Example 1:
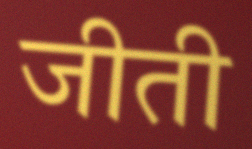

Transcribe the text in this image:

जीती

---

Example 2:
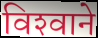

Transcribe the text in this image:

विश्वाने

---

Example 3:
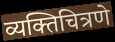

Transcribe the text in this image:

व्यक्तिचित्रणे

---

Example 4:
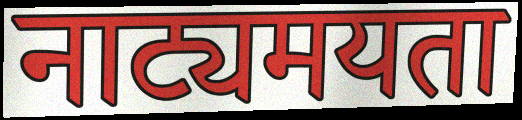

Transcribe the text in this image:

नाट्यमयता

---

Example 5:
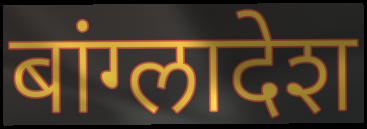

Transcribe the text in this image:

बांग्लादेश